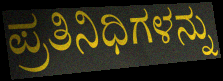
ಪ್ರತಿನಿಧಿಗಳನ್ನು